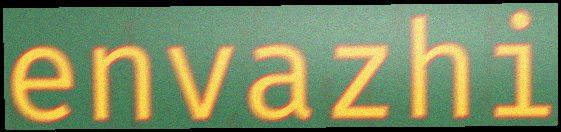
envazhi